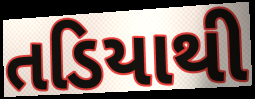
તડિયાથી